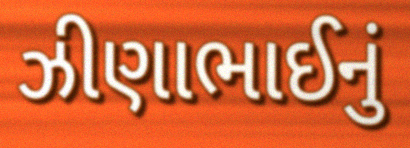
ઝીણાભાઈનું